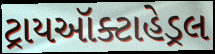
ટ્રાયઑક્ટાહેડ્રલ